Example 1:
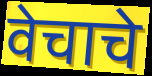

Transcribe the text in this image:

वेचाचे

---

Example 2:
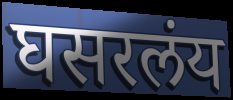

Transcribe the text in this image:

घसरलंय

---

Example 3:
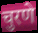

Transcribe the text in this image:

चुरणे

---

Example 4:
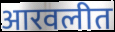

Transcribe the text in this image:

आरवलीत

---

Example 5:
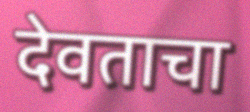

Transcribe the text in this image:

देवताचा